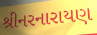
શ્રીનરનારાયણ